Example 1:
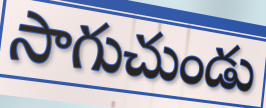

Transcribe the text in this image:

సాగుచుండు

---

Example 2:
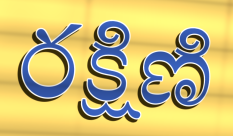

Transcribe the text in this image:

రక్షిణి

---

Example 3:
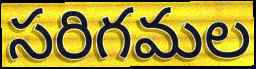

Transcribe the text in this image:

సరిగమల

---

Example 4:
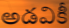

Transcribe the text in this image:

అడవికీ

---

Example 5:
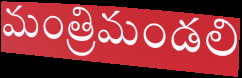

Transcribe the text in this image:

మంత్రిమండలి